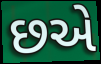
છએ